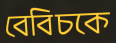
বেবিচকে